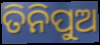
ତିନିପୁଅ